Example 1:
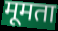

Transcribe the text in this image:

मूमता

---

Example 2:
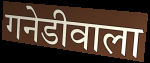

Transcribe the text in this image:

गनेडीवाला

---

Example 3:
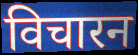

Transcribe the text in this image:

विचारन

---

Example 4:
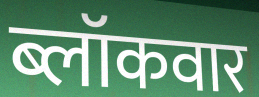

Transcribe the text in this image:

ब्लॉकवार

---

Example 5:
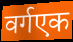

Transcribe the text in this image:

वर्गएक